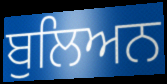
ਬੁਲਿਅਨ